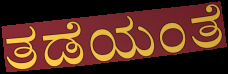
ತಡೆಯಂತೆ